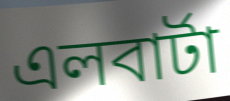
এলবার্টা